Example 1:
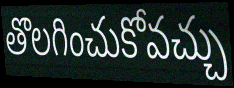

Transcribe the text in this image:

తొలగించుకోవచ్చు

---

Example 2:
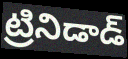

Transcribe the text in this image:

ట్రినిడాడ్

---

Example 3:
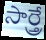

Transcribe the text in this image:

సార్త్రే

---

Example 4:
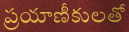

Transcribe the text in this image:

ప్రయాణీకులతో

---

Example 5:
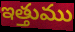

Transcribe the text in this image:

ఇత్తుము